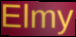
Elmy